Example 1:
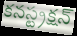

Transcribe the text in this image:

కనస్ట్రక్షన్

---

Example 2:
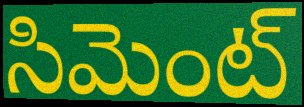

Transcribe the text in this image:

సిమెంట్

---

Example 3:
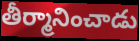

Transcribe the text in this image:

తీర్మానించాడు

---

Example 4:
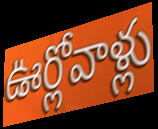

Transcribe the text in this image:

ఊర్లోవాళ్లు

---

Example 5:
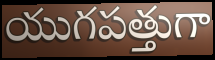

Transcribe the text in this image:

యుగపత్తుగా